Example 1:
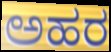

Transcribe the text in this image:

ಅಹರ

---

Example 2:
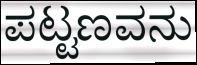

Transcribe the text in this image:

ಪಟ್ಟಣವನು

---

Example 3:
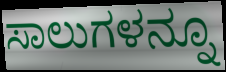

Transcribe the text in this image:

ಸಾಲುಗಳನ್ನೂ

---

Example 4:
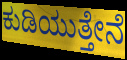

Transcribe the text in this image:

ಕುಡಿಯುತ್ತೇನೆ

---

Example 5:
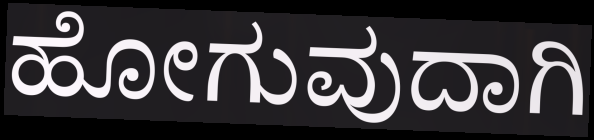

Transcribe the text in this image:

ಹೋಗುವುದಾಗಿ